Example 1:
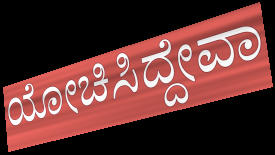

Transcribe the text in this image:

ಯೋಚಿಸಿದ್ದೇವಾ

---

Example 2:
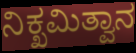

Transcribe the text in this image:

ನಿಕ್ಖಮಿತ್ವಾನ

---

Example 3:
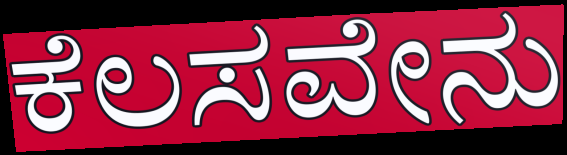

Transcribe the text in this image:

ಕೆಲಸವೇನು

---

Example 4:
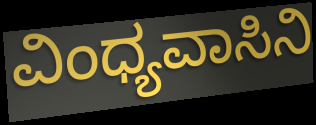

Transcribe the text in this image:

ವಿಂಧ್ಯವಾಸಿನಿ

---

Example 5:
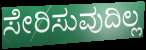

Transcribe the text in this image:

ಸೇರಿಸುವುದಿಲ್ಲ